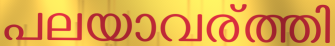
പലയാവര്ത്തി